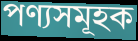
পণ্যসমূহক